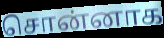
சொன்னாக